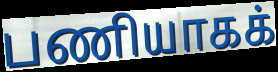
பணியாகக்